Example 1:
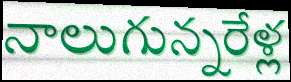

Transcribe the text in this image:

నాలుగున్నరేళ్ల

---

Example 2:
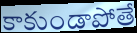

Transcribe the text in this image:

కాకుండాపోతే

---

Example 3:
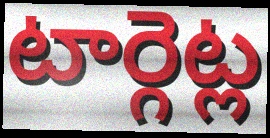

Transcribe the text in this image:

టార్గెట్ల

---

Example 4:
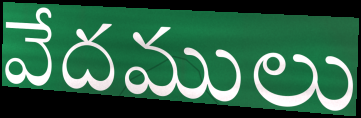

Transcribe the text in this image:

వేదములు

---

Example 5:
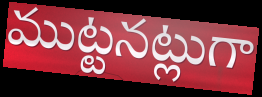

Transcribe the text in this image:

ముట్టనట్లుగా